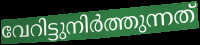
വേറിട്ടുനിർത്തുന്നത്